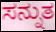
ಸನ್ನುತ